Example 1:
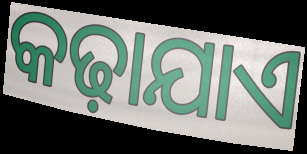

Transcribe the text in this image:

କଢ଼ାଯାଏ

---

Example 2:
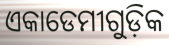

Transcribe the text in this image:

ଏକାଡେମୀଗୁଡ଼ିକ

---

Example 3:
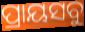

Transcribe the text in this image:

ପ୍ରାୟସବୁ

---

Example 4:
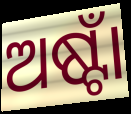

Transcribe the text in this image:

ଅଷ୍ଟାଁ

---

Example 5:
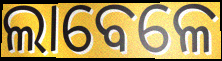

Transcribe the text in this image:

ଲାବେଳେ